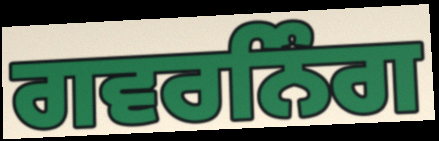
ਗਵਰਨਿੰਗ